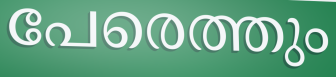
പേരെത്തും